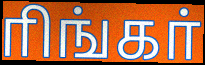
ரிங்கர்